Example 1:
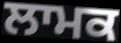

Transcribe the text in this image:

ਲਾਮਕ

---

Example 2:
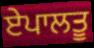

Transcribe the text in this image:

ਏਪਾਲਤੂ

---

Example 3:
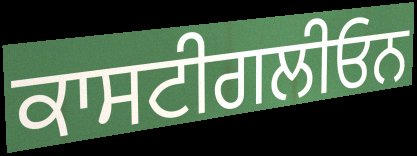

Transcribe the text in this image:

ਕਾਸਟੀਗਲੀਓਨ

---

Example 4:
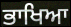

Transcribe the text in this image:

ਭਾਖਿਆ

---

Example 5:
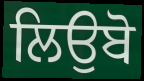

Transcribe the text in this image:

ਲਿਉਬੋ